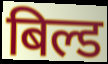
बिल्ड